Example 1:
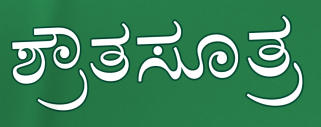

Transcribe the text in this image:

ಶ್ರೌತಸೂತ್ರ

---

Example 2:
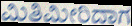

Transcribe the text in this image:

ಮಿತಿಮೀರಿದಾಗ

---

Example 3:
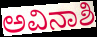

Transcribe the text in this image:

ಅವಿನಾಶಿ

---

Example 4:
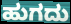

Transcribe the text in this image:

ಹುಗದು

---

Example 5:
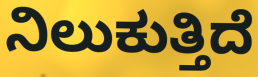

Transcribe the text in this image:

ನಿಲುಕುತ್ತಿದೆ